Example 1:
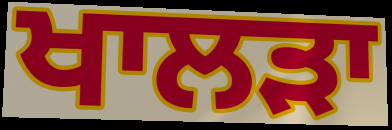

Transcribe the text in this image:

ਖਾਲੜਾ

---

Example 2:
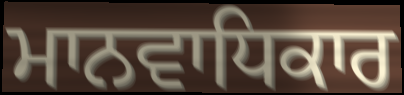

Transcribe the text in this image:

ਮਾਨਵਾਧਿਕਾਰ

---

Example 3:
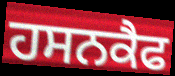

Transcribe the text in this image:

ਹਸਨਕੈਫ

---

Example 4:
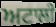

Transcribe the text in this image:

ਅਟਾਲੀ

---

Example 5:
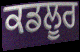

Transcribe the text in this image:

ਕਡਲੂਰ